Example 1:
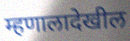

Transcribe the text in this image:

म्हणालादेखील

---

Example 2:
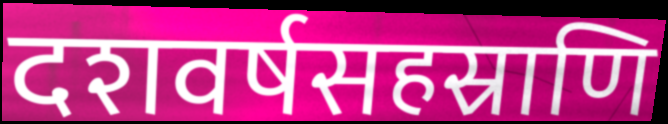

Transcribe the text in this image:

दशवर्षसहस्राणि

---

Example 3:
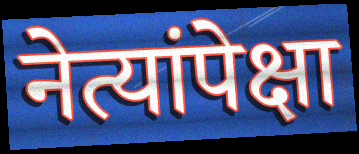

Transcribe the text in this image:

नेत्यांपेक्षा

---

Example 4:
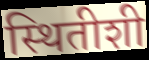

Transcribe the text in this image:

स्थितीशी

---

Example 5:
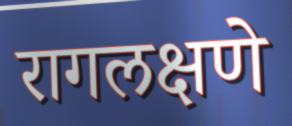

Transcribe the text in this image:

रागलक्षणे